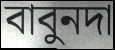
বাবুনদা